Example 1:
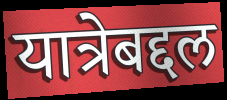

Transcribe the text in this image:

यात्रेबद्दल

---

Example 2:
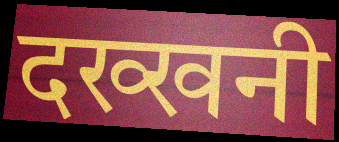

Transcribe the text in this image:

दख्खनी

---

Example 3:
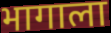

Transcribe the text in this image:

भागाला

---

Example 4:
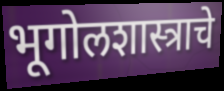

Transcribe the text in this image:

भूगोलशास्त्राचे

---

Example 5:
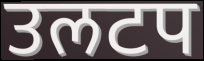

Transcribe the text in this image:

उलटप